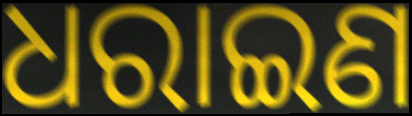
ଧରାଇଣ